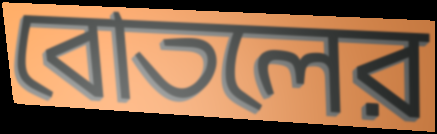
বোতলের